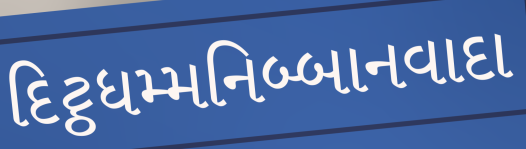
દિટ્ઠધમ્મનિબ્બાનવાદા